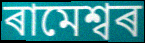
ৰামেশ্বৰ